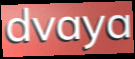
dvaya